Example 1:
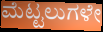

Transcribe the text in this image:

ಮೆಟ್ಟಲುಗಳೇ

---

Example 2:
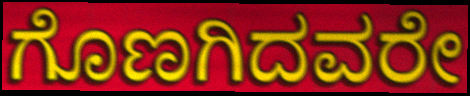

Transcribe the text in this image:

ಗೊಣಗಿದವರೇ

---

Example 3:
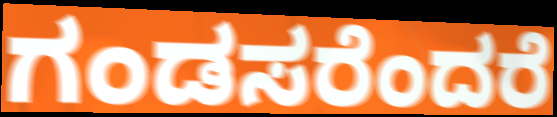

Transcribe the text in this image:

ಗಂಡಸರೆಂದರೆ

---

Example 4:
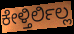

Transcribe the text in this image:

ಕೇಳ್ತಿರ್ಲಿಲ್ಲ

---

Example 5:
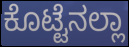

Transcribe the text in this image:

ಕೊಟ್ಟೆನಲ್ಲಾ